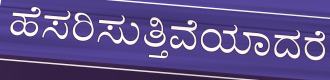
ಹೆಸರಿಸುತ್ತಿವೆಯಾದರೆ